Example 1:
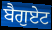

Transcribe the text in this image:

ਬੈਗੁਏਟ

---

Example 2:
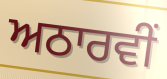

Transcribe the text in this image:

ਅਠਾਰਵੀਂ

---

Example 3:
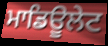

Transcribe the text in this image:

ਮਾਡਿਊਲੇਟ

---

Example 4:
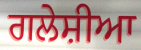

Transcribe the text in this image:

ਗਲੇਸ਼ੀਆ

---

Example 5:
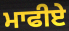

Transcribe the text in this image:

ਮਾਫੀਏ